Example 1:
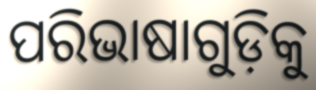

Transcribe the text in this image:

ପରିଭାଷାଗୁଡ଼ିକୁ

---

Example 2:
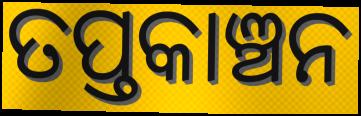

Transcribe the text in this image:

ତପ୍ତକାଞ୍ଚନ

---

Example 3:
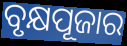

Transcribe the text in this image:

ବୃକ୍ଷପୂଜାର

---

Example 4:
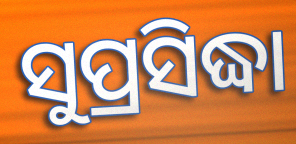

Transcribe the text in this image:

ସୁପ୍ରସିଦ୍ଧା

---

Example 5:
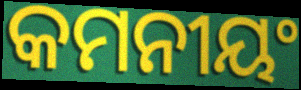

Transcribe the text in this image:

କମନୀୟଂ